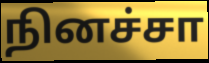
நினச்சா